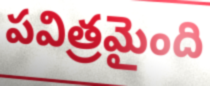
పవిత్రమైంది